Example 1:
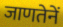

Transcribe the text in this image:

जाणतेनें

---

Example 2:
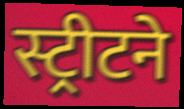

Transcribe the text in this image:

स्ट्रीटने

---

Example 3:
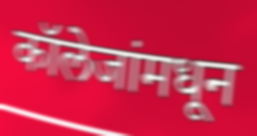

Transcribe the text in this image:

कॉलेजांमधून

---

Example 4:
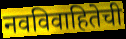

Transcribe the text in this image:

नवविवाहितेची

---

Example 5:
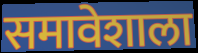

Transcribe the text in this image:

समावेशाला